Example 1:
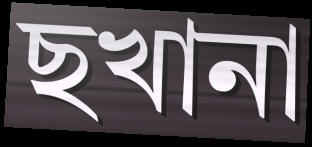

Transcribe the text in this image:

ছখানা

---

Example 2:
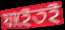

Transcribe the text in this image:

যাইেতই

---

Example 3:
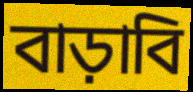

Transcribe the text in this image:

বাড়াবি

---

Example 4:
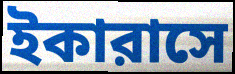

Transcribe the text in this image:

ইকারাসে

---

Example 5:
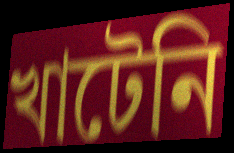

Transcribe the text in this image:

খাটেনি